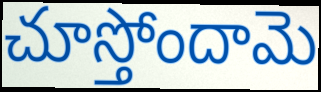
చూస్తోందామె